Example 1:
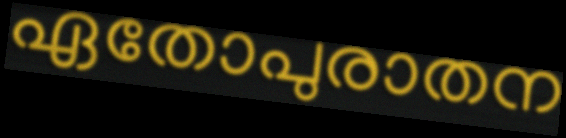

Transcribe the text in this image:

ഏതോപുരാതന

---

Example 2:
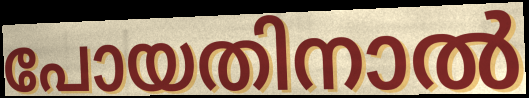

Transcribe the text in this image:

പോയതിനാൽ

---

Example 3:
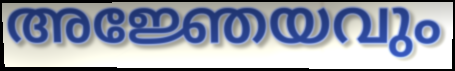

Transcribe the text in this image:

അജ്ഞേയവും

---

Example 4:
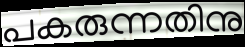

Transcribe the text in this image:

പകരുന്നതിനു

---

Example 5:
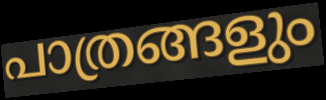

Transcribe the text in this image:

പാത്രങ്ങളും